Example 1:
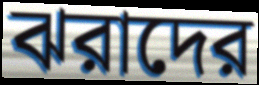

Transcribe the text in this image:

ঝরাদের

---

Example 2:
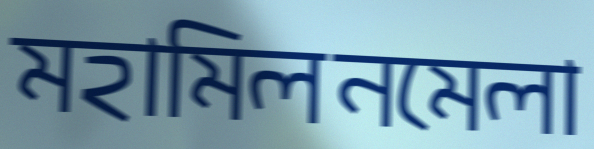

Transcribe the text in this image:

মহামিলনমেলা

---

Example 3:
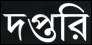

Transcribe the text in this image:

দপ্তরি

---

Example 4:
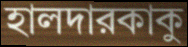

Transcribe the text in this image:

হালদারকাকু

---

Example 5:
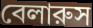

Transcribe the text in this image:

বেলারুস